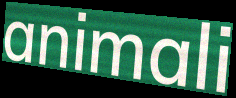
animali